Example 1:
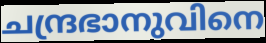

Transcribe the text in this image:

ചന്ദ്രഭാനുവിനെ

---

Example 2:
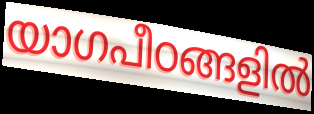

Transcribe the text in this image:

യാഗപീഠങ്ങളിൽ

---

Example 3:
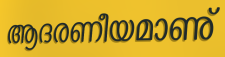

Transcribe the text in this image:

ആദരണീയമാണു്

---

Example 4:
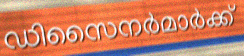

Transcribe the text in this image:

ഡിസൈനർമാർക്ക്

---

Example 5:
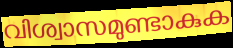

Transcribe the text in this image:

വിശ്വാസമുണ്ടാകുക